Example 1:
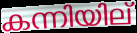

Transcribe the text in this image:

കന്നിയില്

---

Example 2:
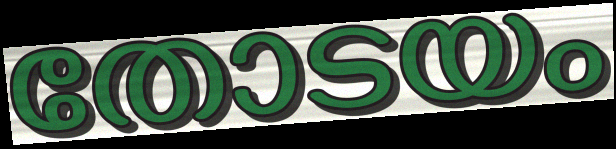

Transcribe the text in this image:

തോടയം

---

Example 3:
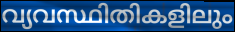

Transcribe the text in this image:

വ്യവസ്ഥിതികളിലും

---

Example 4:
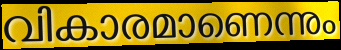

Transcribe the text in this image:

വികാരമാണെന്നും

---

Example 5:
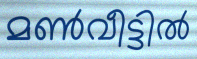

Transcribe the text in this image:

മൺവീട്ടിൽ